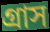
গ্রাস